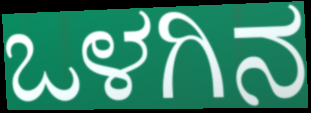
ಒಳಗಿನ